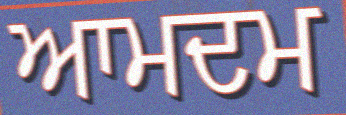
ਆਮਦਮ